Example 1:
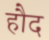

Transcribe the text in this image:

हौद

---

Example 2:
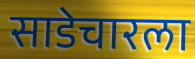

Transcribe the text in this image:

साडेचारला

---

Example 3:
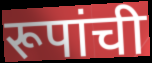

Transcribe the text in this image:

रूपांची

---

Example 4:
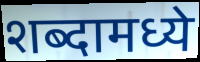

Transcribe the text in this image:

शब्दामध्ये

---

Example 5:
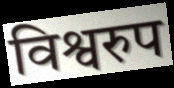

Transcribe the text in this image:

विश्वरुप